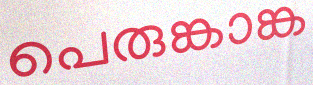
പെരുങ്കാങ്ക